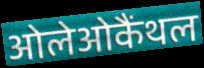
ओलेओकैंथल